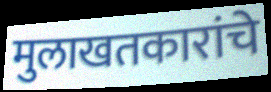
मुलाखतकारांचे